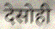
देसोही